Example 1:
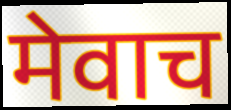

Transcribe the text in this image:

मेवाच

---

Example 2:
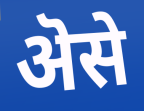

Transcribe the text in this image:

ऄसे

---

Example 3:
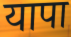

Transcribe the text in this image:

यापा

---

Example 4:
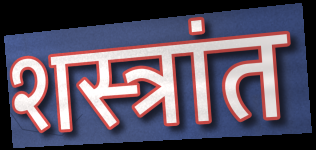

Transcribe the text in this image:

शस्त्रांत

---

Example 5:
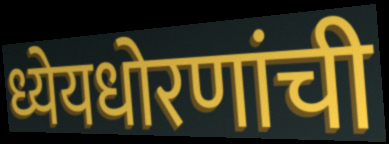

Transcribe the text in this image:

ध्येयधोरणांची